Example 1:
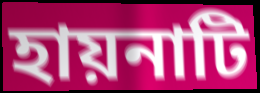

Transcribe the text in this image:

হায়নাটি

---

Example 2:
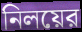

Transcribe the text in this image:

নিলয়ের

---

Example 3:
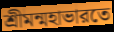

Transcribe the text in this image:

শ্রীমন্মহাভারতে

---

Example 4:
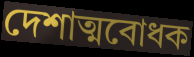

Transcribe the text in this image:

দেশাত্মবোধক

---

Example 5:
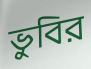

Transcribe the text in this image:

ভুবির